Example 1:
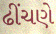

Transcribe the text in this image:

ઢીંચણે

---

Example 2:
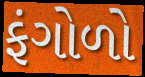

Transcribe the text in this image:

ફંગોળો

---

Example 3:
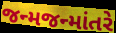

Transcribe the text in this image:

જન્મજન્માંતરે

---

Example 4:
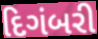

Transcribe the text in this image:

દિગંબરી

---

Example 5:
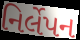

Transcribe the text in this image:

નિર્લેપન